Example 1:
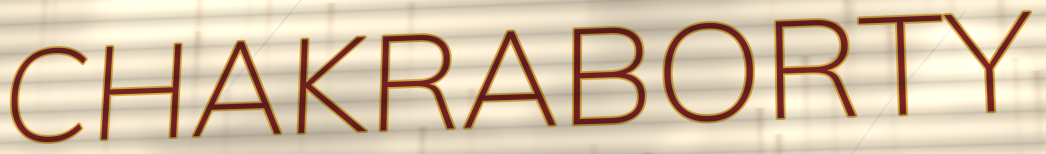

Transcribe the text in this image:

CHAKRABORTY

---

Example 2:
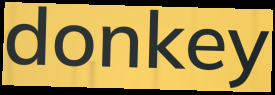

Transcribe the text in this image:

donkey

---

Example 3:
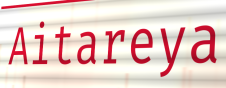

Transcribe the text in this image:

Aitareya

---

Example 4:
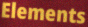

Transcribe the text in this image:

Elements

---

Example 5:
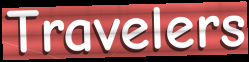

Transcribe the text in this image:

Travelers